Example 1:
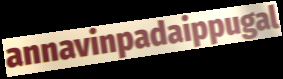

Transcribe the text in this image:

annavinpadaippugal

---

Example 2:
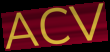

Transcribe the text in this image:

ACV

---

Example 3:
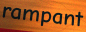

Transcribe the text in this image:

rampant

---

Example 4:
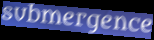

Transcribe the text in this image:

submergence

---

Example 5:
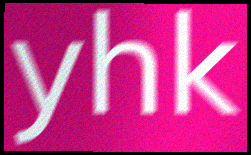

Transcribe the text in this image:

yhk